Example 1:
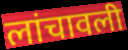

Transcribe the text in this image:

लांचावली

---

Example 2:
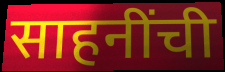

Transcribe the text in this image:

साहनींची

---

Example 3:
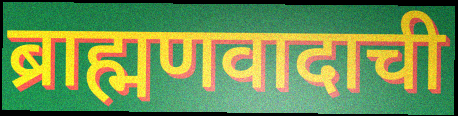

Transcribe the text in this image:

ब्राह्मणवादाची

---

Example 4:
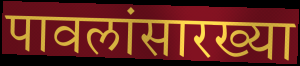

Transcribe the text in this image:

पावलांसारख्या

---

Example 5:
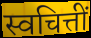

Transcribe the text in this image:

स्वचित्तीं